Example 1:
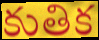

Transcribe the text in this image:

కుతిక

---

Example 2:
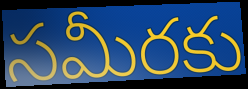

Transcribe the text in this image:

సమీరకు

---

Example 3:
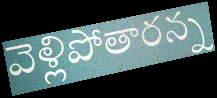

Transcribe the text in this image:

వెళ్లిపోతారన్న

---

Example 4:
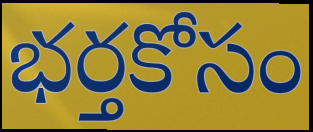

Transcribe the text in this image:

భర్తకోసం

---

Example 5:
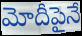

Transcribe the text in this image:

మోదీపైనే